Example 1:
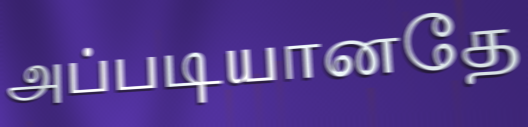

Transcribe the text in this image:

அப்படியானதே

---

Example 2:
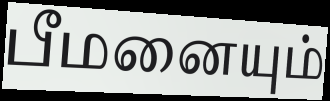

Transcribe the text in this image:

பீமனையும்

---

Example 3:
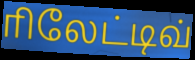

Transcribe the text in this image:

ரிலேட்டிவ்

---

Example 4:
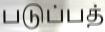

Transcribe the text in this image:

படுப்பத்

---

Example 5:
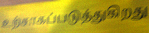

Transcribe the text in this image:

உற்சாகப்படுத்துகிறது